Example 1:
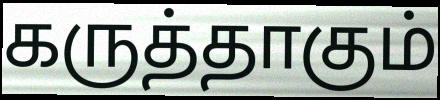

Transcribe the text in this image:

கருத்தாகும்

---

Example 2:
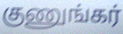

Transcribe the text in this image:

குணுங்கர்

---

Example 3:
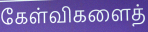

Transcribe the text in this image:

கேள்விகளைத்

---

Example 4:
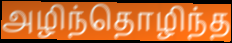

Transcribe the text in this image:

அழிந்தொழிந்த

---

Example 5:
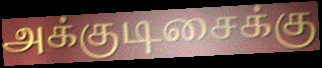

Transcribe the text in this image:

அக்குடிசைக்கு